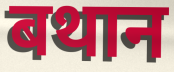
बथान